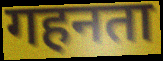
गहनता